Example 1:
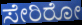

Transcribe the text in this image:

ಸೇರಿರೋ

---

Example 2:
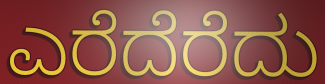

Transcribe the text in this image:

ಎರೆದೆರೆದು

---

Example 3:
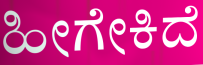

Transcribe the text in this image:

ಹೀಗೇಕಿದೆ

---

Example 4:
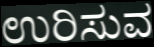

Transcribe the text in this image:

ಉರಿಸುವ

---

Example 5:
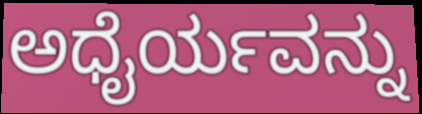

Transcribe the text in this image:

ಅಧೈರ್ಯವನ್ನು